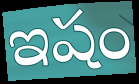
ఇషం